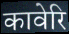
कावेरि